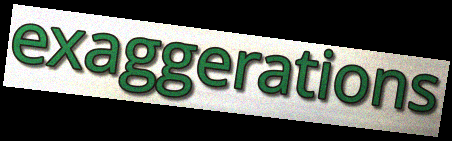
exaggerations